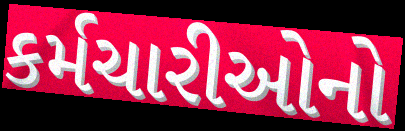
કર્મચારીઓનો